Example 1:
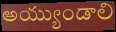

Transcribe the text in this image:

అయ్యుండాలి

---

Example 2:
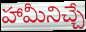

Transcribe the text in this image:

హామీనిచ్చే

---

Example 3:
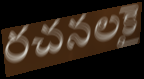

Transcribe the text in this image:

రచనలకై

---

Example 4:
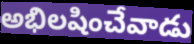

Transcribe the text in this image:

అభిలషించేవాడు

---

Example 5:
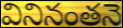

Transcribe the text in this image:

వినినంతనె